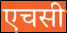
एचसी